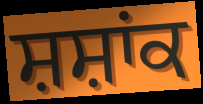
ਸ਼ਸ਼ਾਂਕ